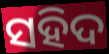
ସହିଦ